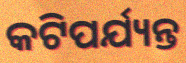
କଟିପର୍ଯ୍ୟନ୍ତ